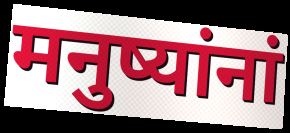
मनुष्यांनां